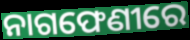
ନାଗଫେଣୀରେ